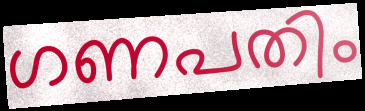
ഗണപതിം